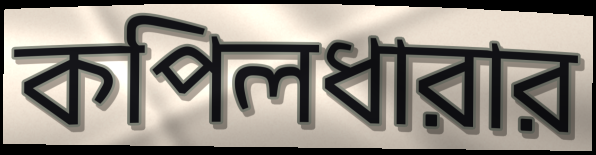
কপিলধারার